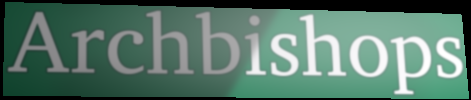
Archbishops